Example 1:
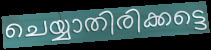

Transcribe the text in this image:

ചെയ്യാതിരിക്കട്ടെ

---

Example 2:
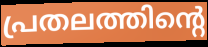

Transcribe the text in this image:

പ്രതലത്തിന്റെ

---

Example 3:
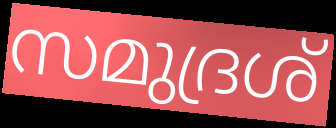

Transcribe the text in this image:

സമുദ്രശ്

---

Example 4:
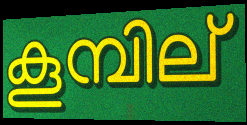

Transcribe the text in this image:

കൂമ്പില്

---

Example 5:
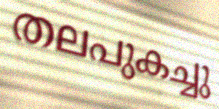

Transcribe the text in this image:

തലപുകച്ചു